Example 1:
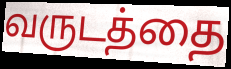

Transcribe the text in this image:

வருடத்தை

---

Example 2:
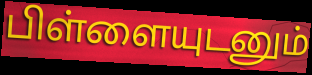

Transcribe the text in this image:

பிள்ளையுடனும்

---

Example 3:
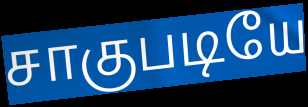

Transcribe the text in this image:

சாகுபடியே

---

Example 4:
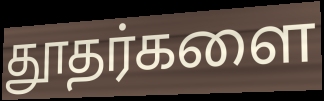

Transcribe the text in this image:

தூதர்களை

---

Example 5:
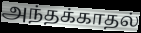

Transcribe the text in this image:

அந்தக்காதல்